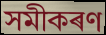
সমীকৰণ